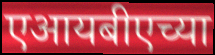
एआयबीएच्या